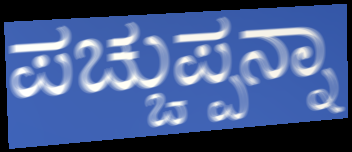
ಪಚ್ಚುಪ್ಪನ್ನಾ